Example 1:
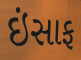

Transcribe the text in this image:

ઇંસાફ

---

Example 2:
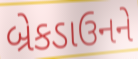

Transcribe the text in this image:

બ્રેકડાઉનને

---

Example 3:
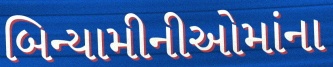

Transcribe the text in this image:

બિન્યામીનીઓમાંના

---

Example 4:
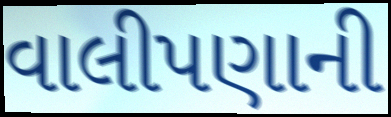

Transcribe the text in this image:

વાલીપણાની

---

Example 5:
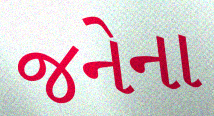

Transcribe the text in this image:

જનેના